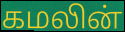
கமலின்